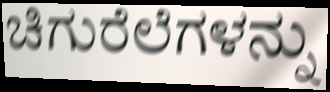
ಚಿಗುರೆಲೆಗಳನ್ನು